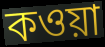
কওয়া